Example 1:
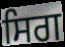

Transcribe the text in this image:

ਸਿਗ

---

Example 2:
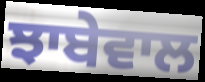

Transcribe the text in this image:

ਝਾਬੇਵਾਲ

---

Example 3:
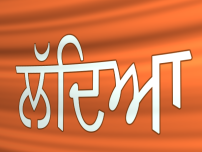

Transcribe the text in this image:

ਲੱਦਿਆ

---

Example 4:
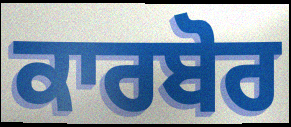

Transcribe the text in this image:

ਕਾਰਬੋਰ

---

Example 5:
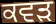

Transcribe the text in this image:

ਕਵੜ